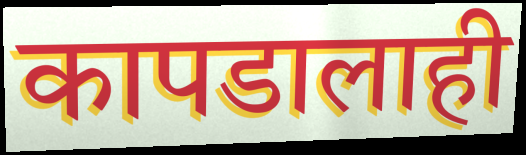
कापडालाही